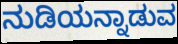
ನುಡಿಯನ್ನಾಡುವ